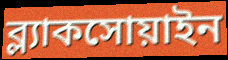
ব্ল্যাকসোয়াইন